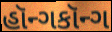
હૉન્ગકૉન્ગ